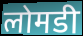
लोमडी